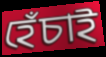
হেঁচাই